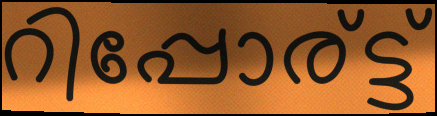
റിപ്പോര്ട്ട്